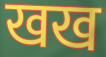
खख